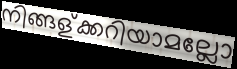
നിങ്ങള്ക്കറിയാമല്ലോ